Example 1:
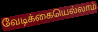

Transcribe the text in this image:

வேடிக்கையெல்லாம்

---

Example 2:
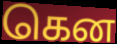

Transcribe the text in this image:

கென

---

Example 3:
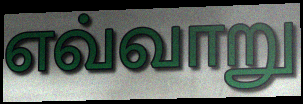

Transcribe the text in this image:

எவ்வாறு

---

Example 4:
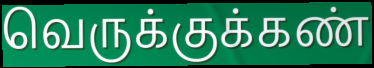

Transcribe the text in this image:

வெருக்குக்கண்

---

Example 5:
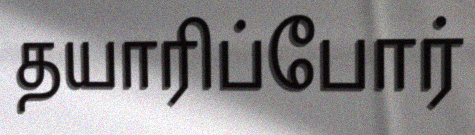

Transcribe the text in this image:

தயாரிப்போர்